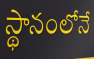
స్థానంలోనే